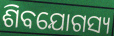
ଶିବଯୋଗସ୍ୟ